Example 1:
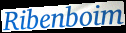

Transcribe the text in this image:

Ribenboim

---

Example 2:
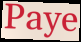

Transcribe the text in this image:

Paye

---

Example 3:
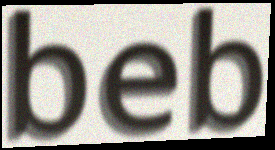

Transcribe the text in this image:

beb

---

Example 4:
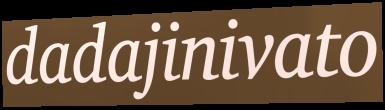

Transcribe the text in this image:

dadajinivato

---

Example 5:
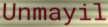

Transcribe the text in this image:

Unmayil